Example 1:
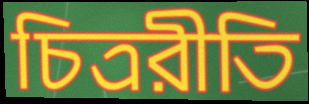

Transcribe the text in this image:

চিত্ররীতি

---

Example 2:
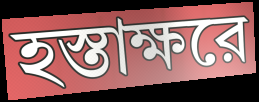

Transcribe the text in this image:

হস্তাক্ষরে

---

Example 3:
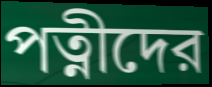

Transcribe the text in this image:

পত্নীদের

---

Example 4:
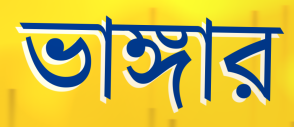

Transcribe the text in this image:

ভাঙ্গার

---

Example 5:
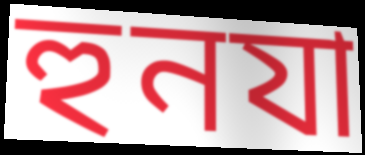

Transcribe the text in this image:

হুনযা